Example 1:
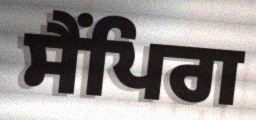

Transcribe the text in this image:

ਸੈਂਪਿਗ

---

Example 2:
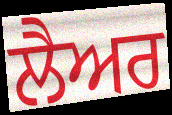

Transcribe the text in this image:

ਲੈਅਰ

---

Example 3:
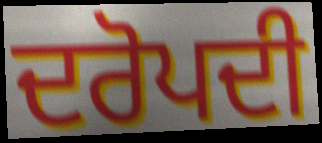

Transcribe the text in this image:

ਦਰੋਪਦੀ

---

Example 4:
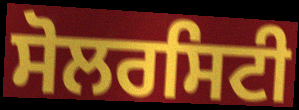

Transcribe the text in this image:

ਸੋਲਰਸਿਟੀ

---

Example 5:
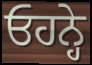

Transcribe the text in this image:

ਓਹਨ੍ਹੇ